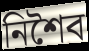
নিশৈব